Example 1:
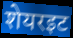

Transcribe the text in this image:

शेयरइट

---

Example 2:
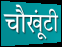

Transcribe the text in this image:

चौखूंटी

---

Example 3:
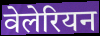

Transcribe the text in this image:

वेलेरियन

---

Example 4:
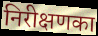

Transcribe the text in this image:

निरीक्षणका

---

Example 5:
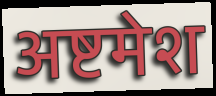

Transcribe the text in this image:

अष्टमेश